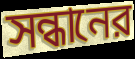
সন্ধানের